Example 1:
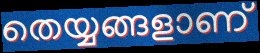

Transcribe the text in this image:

തെയ്യങ്ങളാണ്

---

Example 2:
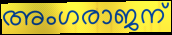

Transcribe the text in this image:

അംഗരാജന്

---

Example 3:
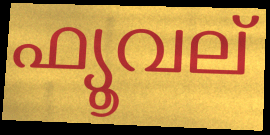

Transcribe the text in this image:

ഫ്യൂവല്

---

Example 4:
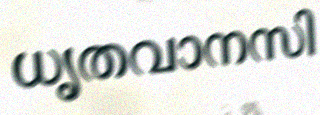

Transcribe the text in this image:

ധൃതവാനസി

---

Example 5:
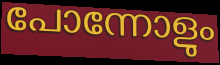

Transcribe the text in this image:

പോന്നോളും